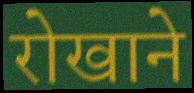
रोखाने